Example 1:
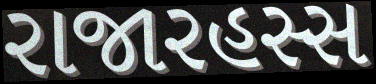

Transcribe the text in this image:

રાજારહસ્સ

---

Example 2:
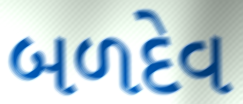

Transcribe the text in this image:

બળદેવ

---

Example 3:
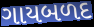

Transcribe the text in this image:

ગાયબળદ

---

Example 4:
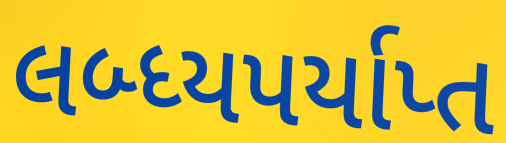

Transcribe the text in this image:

લબ્ધ્યપર્યાપ્ત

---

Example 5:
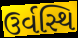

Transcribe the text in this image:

ઉર્વસ્થિ